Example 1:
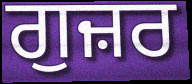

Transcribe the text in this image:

ਗੁਜ਼ਰ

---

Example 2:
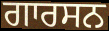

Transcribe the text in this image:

ਗਾਰਸਨ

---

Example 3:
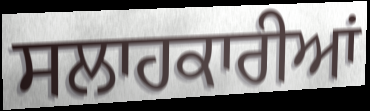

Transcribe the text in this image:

ਸਲਾਹਕਾਰੀਆਂ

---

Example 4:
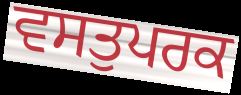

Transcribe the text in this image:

ਵਸਤੁਪਰਕ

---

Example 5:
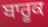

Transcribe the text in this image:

ਬਾਰੂਕ